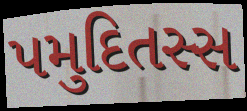
પમુદિતસ્સ